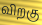
விறகு